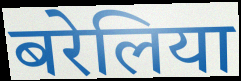
बरेलिया